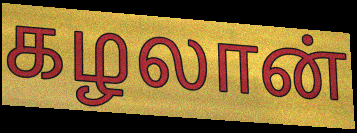
கழலான்